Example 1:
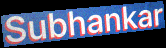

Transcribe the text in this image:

Subhankar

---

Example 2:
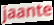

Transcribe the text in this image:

jaante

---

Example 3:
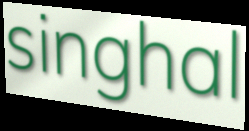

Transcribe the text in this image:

singhal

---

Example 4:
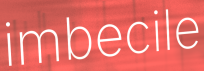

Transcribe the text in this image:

imbecile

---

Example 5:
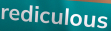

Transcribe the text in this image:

rediculous